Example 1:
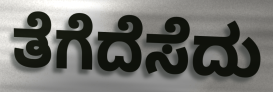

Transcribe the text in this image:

ತೆಗೆದೆಸೆದು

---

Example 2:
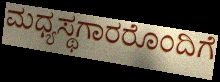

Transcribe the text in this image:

ಮಧ್ಯಸ್ಥಗಾರರೊಂದಿಗೆ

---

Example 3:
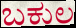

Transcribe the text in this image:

ಬಕುಲ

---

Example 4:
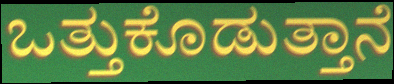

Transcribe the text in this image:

ಒತ್ತುಕೊಡುತ್ತಾನೆ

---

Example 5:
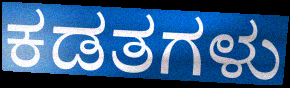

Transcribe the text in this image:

ಕಡತಗಳು